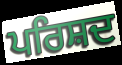
ਪਰਿਸ਼ਦ